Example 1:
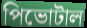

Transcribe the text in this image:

পিভোটাল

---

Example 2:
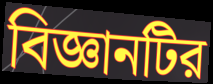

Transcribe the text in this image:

বিজ্ঞানটির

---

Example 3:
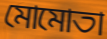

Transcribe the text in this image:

মোমোতা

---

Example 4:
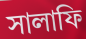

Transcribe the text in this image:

সালাফি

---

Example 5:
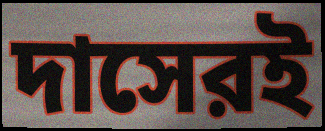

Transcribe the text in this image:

দাসেরই